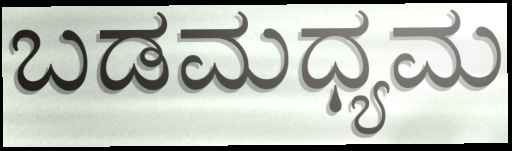
ಬಡಮಧ್ಯಮ